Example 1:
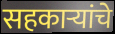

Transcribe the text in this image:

सहकार्‍यांचे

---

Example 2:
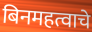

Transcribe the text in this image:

बिनमहत्वाचे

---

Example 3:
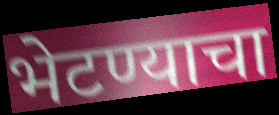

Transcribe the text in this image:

भेटण्याचा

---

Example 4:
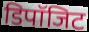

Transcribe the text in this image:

डिपॉजिट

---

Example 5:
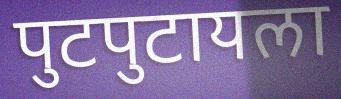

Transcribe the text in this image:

पुटपुटायला